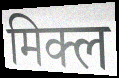
मिक्ल